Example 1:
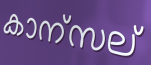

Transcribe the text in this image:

കാന്സല്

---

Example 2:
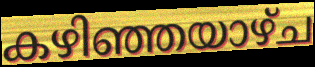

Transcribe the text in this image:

കഴിഞ്ഞയാഴ്ച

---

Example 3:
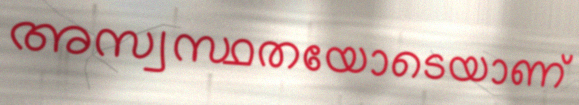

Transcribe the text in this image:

അസ്വസ്ഥതയോടെയാണ്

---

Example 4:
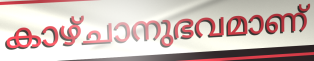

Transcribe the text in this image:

കാഴ്ചാനുഭവമാണ്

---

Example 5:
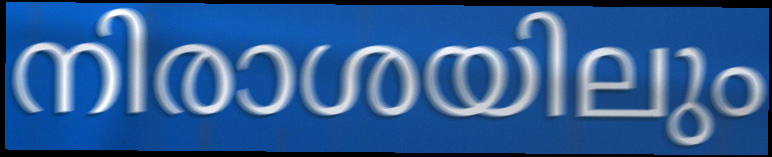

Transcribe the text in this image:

നിരാശയിലും